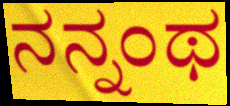
ನನ್ನಂಥ